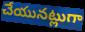
చేయునట్లుగా